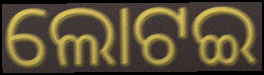
ଲୋଟଇ